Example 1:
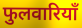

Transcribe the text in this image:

फुलवारियाँ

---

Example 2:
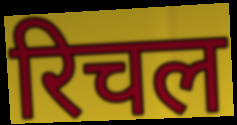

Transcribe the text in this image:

रिचल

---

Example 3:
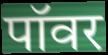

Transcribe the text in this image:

पॉवर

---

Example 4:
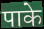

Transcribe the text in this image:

पाके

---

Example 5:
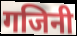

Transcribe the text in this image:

गजिनी